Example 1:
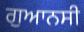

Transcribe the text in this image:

ਗੁਆਨਸੀ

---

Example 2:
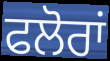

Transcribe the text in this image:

ਫਲੋਰਾਂ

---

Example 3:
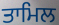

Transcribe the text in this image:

ਤਾਮਿਲ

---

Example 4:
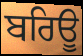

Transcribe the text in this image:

ਬਰਿਊ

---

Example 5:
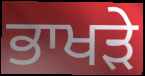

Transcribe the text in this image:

ਭਾਖੜੇ